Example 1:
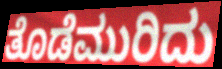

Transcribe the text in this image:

ತೊಡೆಮುರಿದು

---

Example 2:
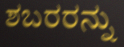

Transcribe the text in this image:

ಶಬರರನ್ನು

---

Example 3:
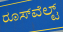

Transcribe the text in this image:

ರೂಸ್‌ವೆಲ್ಟ್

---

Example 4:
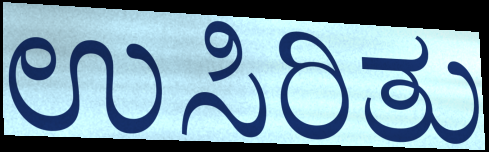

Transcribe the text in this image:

ಉಸಿರಿತು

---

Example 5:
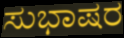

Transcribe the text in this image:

ಸುಭಾಷರ